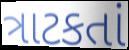
ત્રાટકતાં